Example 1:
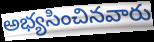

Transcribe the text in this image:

అభ్యసించినవారు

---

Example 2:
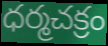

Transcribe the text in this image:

ధర్మచక్రం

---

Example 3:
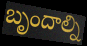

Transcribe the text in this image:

బృందాల్ని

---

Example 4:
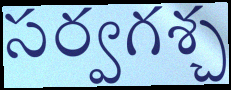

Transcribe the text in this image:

సర్వగశ్చ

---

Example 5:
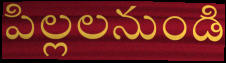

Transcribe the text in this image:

పిల్లలనుండి